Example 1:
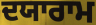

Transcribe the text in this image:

ਦਯਾਰਾਮ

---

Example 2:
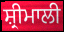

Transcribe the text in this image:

ਸ਼੍ਰੀਮਾਲੀ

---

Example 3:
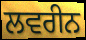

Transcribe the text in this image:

ਲਵਰੀਨ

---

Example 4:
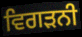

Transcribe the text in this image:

ਵਿਗੜਨੀ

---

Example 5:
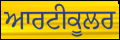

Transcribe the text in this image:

ਆਰਟੀਕੂਲਰ